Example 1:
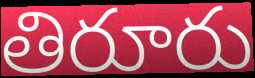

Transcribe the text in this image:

తిరూరు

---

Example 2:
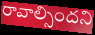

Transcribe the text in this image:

రావాల్సిందని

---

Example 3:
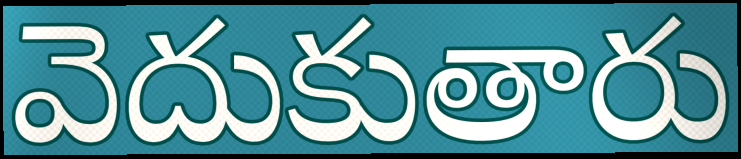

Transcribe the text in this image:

వెదుకుతారు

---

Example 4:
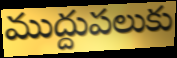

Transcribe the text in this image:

ముద్దుపలుకు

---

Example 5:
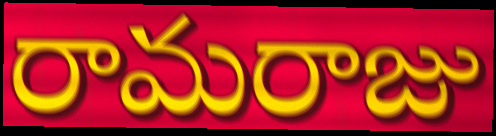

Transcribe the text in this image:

రామరాజు